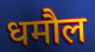
धमौल